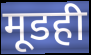
मूडही